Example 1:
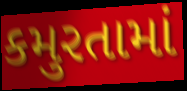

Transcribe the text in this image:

કમુરતામાં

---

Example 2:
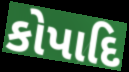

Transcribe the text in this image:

કોપાદિ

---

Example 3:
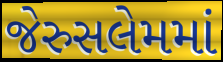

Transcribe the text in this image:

જેરુસલેમમાં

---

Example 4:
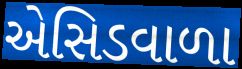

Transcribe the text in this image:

એસિડવાળા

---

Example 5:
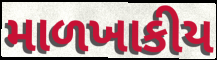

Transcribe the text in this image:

માળખાકીય